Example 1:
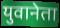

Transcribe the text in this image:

युवानेता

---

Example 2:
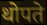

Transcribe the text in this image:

थोपते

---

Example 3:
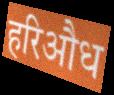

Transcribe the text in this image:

हरिऔध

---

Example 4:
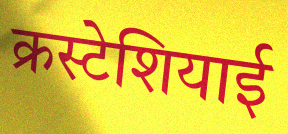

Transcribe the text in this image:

क्रस्टेशियाई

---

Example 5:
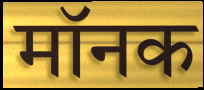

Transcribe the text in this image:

मॉनक